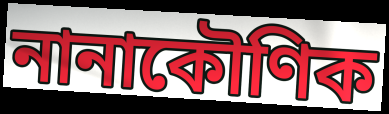
নানাকৌণিক